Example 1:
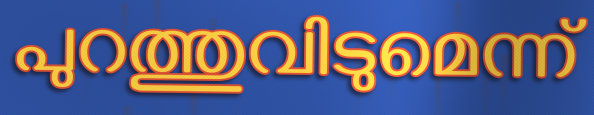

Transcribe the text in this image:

പുറത്തുവിടുമെന്ന്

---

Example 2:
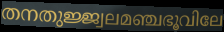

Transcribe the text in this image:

തനതുജ്ജ്വലമഞ്ചഭൂവിലേ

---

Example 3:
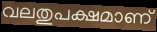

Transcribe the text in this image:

വലതുപക്ഷമാണ്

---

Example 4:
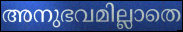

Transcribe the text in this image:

അനുഭവമില്ലാതെ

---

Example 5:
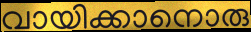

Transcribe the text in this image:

വായിക്കാനൊരു